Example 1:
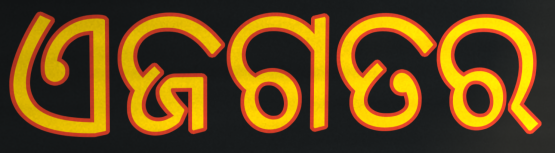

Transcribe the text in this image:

ଏଜଗତର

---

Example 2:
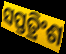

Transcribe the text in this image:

ସପ୍ତତ୍ରିଂଶ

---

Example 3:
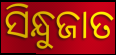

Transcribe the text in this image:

ସିନ୍ଧୁଜାତ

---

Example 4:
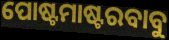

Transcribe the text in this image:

ପୋଷ୍ଟମାଷ୍ଟରବାବୁ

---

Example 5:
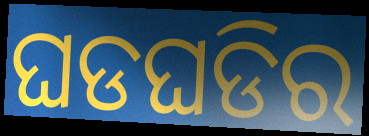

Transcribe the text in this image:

ଘଡଘଡିର